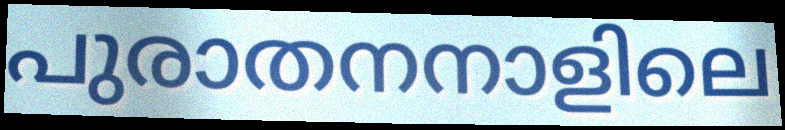
പുരാതനനാളിലെ